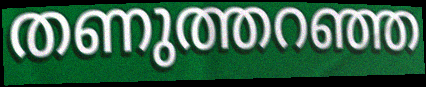
തണുത്തറഞ്ഞ